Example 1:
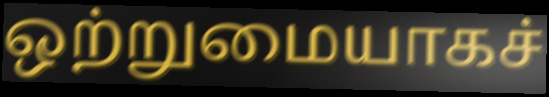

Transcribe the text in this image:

ஒற்றுமையாகச்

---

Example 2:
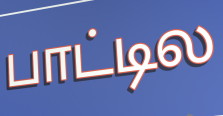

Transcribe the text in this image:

பாட்டில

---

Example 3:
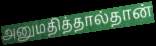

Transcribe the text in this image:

அனுமதித்தால்தான்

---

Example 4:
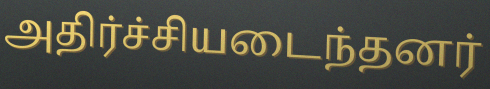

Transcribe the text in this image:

அதிர்ச்சியடைந்தனர்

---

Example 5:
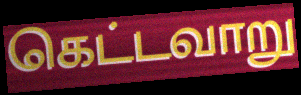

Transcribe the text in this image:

கெட்டவாறு